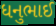
ધનુભાઈ